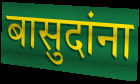
बासुदांना